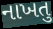
નાખતુ